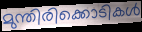
മുന്തിരിക്കൊടികൾ